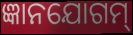
ଜ୍ଞାନଯୋଗମ୍